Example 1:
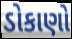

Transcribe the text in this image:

ડોકાણો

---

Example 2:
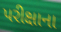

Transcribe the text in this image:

પરીક્ષાના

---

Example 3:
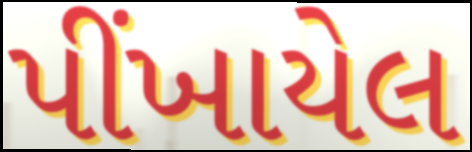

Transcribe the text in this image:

પીંખાયેલ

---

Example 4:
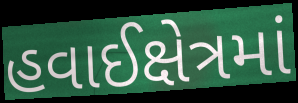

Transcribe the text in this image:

હવાઈક્ષેત્રમાં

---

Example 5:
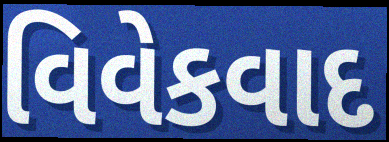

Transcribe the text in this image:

વિવેકવાદ